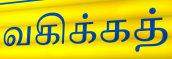
வகிக்கத்